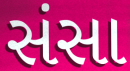
સંસા